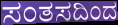
ಸಂತಸದಿಂದ